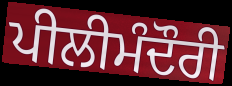
ਪੀਲੀਮੰਦੌਰੀ